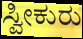
ಸ್ವೀಕುರು